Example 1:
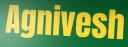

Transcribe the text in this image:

Agnivesh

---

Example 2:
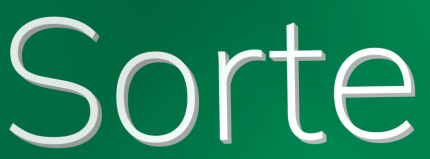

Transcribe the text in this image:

Sorte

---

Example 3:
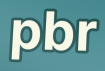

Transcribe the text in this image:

pbr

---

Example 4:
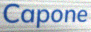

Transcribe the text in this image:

Capone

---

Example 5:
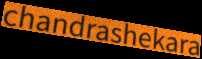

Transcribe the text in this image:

chandrashekara